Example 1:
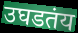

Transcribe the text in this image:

उघडतंय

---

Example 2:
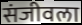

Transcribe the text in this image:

संजीवला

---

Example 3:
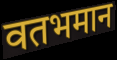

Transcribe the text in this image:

वतभमान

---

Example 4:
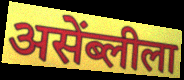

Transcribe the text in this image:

असेंब्लीला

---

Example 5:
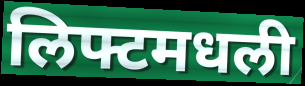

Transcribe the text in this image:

लिफ्टमधली